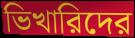
ভিখারিদের